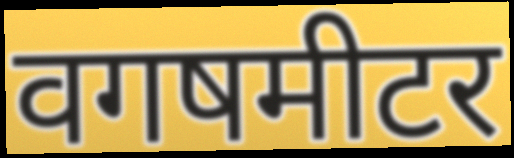
वगषमीटर